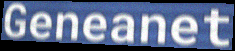
Geneanet